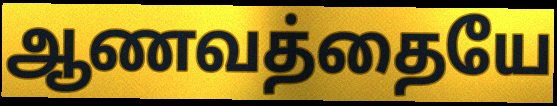
ஆணவத்தையே